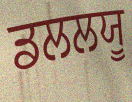
ਡਲਲਯੂ